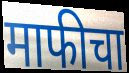
माफीचा